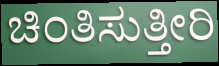
ಚಿಂತಿಸುತ್ತೀರಿ